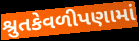
શ્રુતકેવળીપણામાં